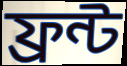
ফ্রন্ট